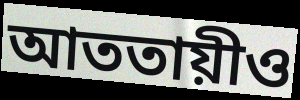
আততায়ীও